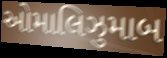
ઓમાલિઝુમાબ